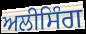
ਅਲੀਸਿੰਗ